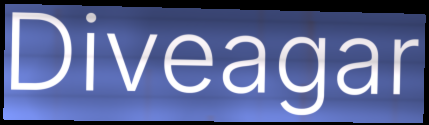
Diveagar